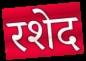
रशेद